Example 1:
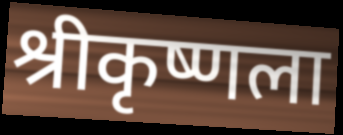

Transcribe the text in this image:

श्रीकृष्णला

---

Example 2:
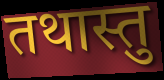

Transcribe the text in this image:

तथास्तु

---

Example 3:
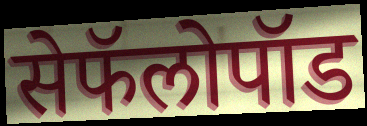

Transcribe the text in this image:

सेफॅलोपॉड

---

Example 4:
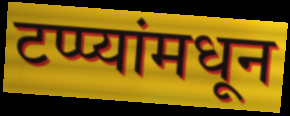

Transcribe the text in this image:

टप्प्यांमधून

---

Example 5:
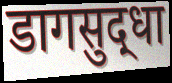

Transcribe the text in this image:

डागसुद्धा